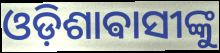
ଓଡ଼ିଶାଵାସୀଙ୍କୁ